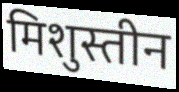
मिशुस्तीन